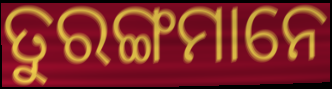
ତୁରଙ୍ଗମାନେ